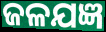
ଜଳଯଜ୍ଞ